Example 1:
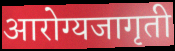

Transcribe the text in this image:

आरोग्यजागृती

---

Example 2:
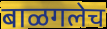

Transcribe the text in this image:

बाळगलेच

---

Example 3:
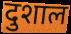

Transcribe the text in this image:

दुशाल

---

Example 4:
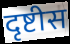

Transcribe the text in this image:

दृष्टीस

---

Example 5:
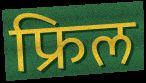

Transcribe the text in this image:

फ्रिल